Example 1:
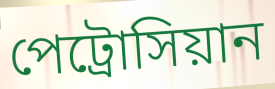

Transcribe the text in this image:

পেট্রোসিয়ান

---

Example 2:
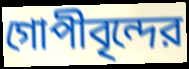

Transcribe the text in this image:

গোপীবৃন্দের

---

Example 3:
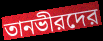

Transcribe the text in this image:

তানভীরদের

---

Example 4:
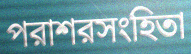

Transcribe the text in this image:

পরাশরসংহিতা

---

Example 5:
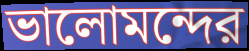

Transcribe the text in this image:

ভালোমন্দের